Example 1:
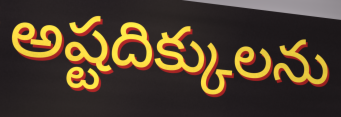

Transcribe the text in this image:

అష్టదిక్కులను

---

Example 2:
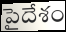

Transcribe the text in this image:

పైదేశం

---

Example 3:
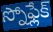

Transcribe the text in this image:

స్నోఫ్లేక్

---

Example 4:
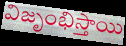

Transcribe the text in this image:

విజృంభిస్తాయి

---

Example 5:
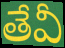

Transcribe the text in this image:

తేవీ